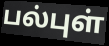
பல்புள்